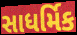
સાધર્મિક